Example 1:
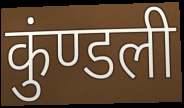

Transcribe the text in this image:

कुंण्डली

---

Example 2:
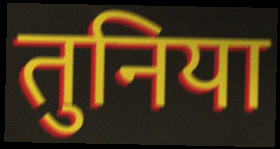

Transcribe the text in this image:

तुनिया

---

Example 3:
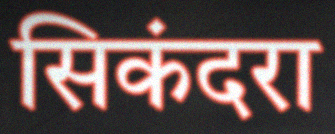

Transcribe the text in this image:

सिकंदरा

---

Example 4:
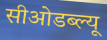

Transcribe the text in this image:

सीओडब्ल्यू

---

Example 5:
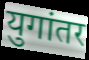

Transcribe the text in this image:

युगांतर